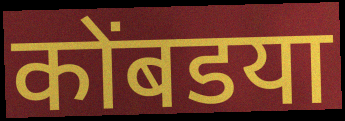
कोंबडया